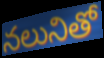
నలునితో